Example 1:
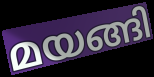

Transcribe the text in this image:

മയങ്ങി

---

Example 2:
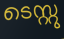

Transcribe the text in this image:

ടെസ്റ്റു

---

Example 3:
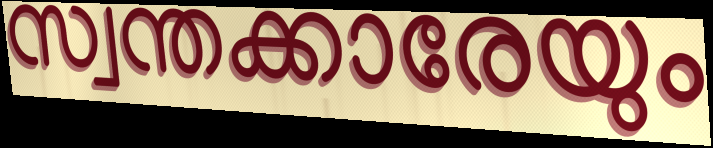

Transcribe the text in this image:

സ്വന്തക്കാരേയും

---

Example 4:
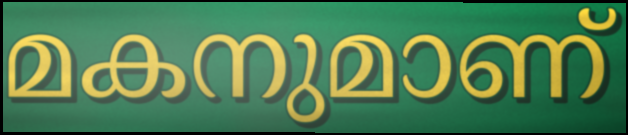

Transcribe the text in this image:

മകനുമാണ്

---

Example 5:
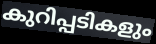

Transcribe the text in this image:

കുറിപ്പടികളും